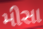
મીસા